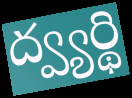
ద్వ్యర్థి